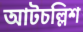
আটচল্লিশ